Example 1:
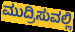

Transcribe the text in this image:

ಮುದ್ರಿಸುವಲ್ಲಿ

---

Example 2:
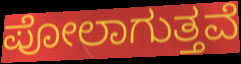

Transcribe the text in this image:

ಪೋಲಾಗುತ್ತವೆ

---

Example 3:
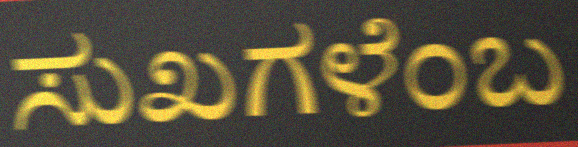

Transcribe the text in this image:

ಸುಖಗಳೆಂಬ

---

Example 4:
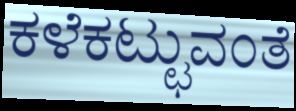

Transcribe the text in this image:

ಕಳೆಕಟ್ಟುವಂತೆ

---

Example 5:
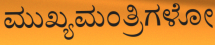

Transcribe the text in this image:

ಮುಖ್ಯಮಂತ್ರಿಗಳೋ